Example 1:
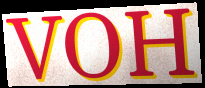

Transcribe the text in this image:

VOH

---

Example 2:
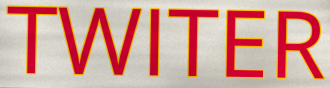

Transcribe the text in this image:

TWITER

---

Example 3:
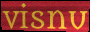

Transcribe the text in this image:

visnu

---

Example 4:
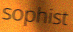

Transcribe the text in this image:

sophist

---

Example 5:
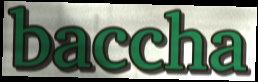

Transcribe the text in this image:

baccha